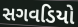
સગવડિયો